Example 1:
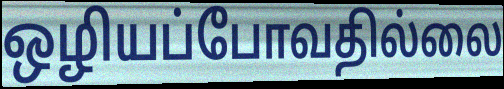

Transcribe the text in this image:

ஒழியப்போவதில்லை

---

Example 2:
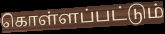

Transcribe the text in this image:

கொள்ளப்பட்டும்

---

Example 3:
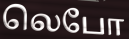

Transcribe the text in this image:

லெபோ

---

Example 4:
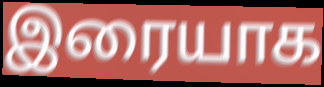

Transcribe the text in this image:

இரையாக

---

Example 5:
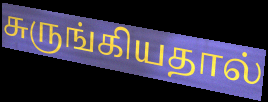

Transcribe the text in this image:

சுருங்கியதால்